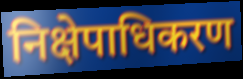
निक्षेपाधिकरण